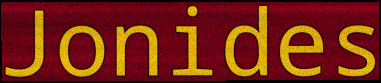
Jonides